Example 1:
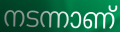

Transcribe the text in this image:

നടന്നാണ്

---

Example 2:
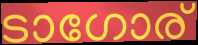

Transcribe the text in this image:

ടാഗോര്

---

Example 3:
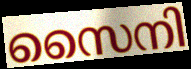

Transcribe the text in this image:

സൈനി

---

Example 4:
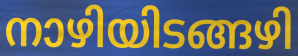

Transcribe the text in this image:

നാഴിയിടങ്ങഴി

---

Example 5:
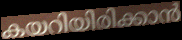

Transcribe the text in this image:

കയറിയിരിക്കാൻ